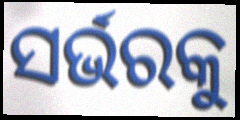
ସର୍ଭରକୁ